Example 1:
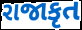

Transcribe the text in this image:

રાજાકૃત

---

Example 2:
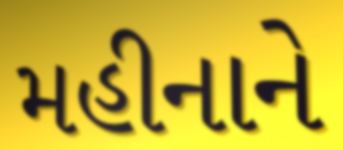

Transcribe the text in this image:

મહીનાને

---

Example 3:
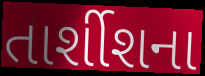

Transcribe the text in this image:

તાર્શીશના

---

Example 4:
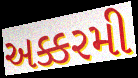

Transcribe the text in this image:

અક્કરમી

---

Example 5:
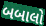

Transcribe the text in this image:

બબાલો